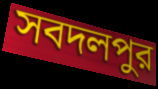
সবদলপুর